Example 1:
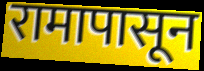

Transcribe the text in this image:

रामापासून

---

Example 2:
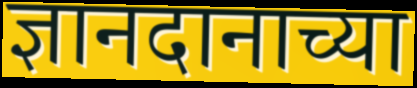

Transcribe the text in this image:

ज्ञानदानाच्या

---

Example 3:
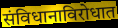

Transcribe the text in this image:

संविधानाविरोधात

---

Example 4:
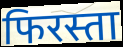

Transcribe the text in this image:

फिरस्ता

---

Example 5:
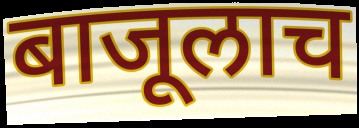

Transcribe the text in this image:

बाजूलाच